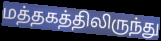
மத்தகத்திலிருந்து